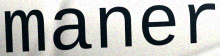
maner